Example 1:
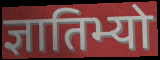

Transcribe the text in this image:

ज्ञातिभ्यो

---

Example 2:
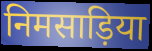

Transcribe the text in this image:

निमसाड़िया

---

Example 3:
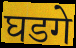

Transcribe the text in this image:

घडगे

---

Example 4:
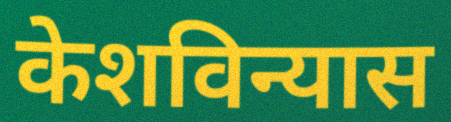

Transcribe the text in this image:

केशविन्यास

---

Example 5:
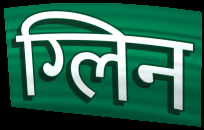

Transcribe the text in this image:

ग्लिन